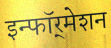
इन्फॉर्मेशन